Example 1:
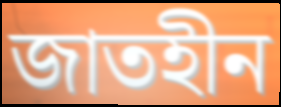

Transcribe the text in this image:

জাতহীন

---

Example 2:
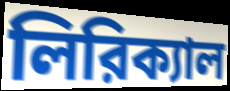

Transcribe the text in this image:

লিরিক্যাল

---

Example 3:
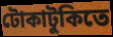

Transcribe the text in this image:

টোকাটুকিতে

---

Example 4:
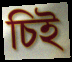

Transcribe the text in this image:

চিই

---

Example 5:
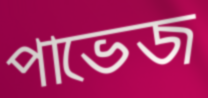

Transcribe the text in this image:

পাভেজ